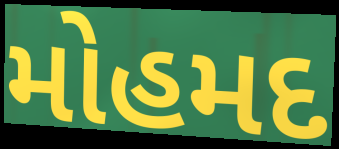
મોહમદ